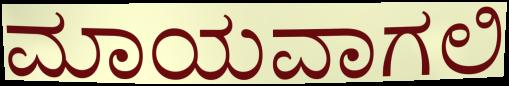
ಮಾಯವಾಗಲಿ